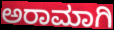
ಅರಾಮಾಗಿ